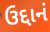
ઉદ્દાનં